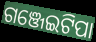
ଗଞ୍ଜେଇଟିପା